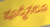
ಪೂರೈಸಲೂ